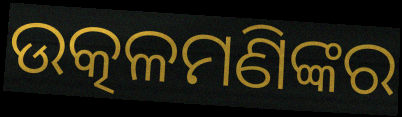
ଉତ୍କଳମଣିଙ୍କର